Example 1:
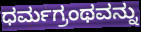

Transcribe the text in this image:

ಧರ್ಮಗ್ರಂಥವನ್ನು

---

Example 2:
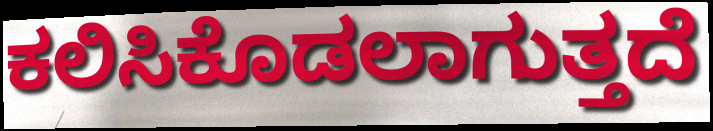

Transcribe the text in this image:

ಕಲಿಸಿಕೊಡಲಾಗುತ್ತದೆ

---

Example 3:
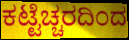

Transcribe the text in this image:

ಕಟ್ಟೆಚ್ಚರದಿಂದ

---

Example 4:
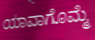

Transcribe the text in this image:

ಯಾವಾಗೊಮ್ಮೆ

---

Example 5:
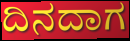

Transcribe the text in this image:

ದಿನದಾಗ